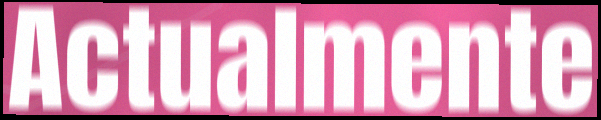
Actualmente